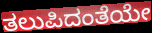
ತಲುಪಿದಂತೆಯೇ